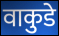
वाकुडे